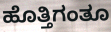
ಹೊತ್ತಿಗಂತೂ